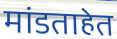
मांडताहेत